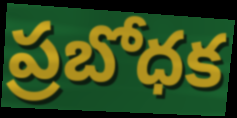
ప్రబోధక